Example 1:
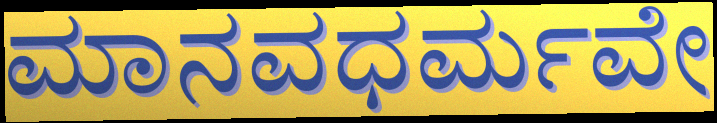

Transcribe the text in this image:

ಮಾನವಧರ್ಮವೇ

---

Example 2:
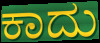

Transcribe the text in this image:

ಕಾದು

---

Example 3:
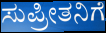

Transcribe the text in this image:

ಸುಪ್ರೀತನಿಗೆ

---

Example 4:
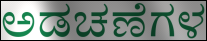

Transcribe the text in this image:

ಅಡಚಣೆಗಳ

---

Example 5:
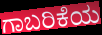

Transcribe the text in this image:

ಗಾಬರಿಕೆಯ